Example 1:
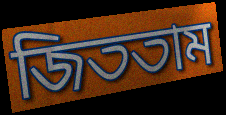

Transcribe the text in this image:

জিততাম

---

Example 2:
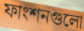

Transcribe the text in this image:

ফাংশনগুলো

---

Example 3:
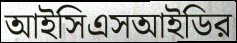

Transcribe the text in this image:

আইসিএসআইডির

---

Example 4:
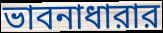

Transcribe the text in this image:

ভাবনাধারার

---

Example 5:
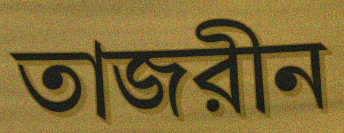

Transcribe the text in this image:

তাজরীন